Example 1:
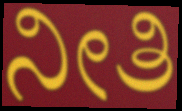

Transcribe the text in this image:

ನೀತಿ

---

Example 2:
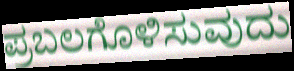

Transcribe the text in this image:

ಪ್ರಬಲಗೊಳಿಸುವುದು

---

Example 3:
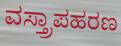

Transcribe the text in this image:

ವಸ್ತ್ರಾಪಹರಣ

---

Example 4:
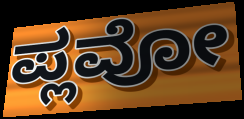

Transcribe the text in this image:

ಪ್ಲವೋ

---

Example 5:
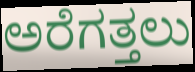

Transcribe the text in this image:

ಅರೆಗತ್ತಲು